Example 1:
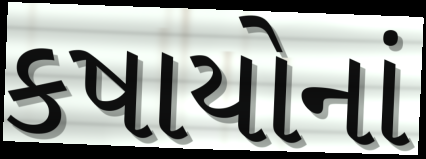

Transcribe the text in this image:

કષાયોનાં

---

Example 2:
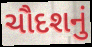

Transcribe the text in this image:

ચૌદશનું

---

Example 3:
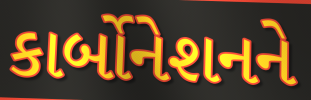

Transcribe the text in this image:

કાર્બોનેશનને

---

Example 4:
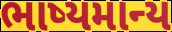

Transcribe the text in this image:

ભાષ્યમાન્ય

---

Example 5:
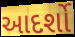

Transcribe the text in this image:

આદર્શો